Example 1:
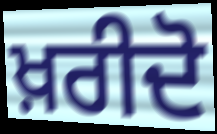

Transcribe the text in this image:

ਖ਼ਰੀਦੋ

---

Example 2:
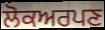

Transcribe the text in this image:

ਲੋਕਅਰਪਣ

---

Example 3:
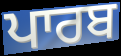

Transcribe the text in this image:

ਪਾਰਬ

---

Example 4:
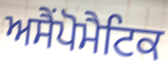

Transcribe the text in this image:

ਅਸੈਂਪੋਮੈਟਿਕ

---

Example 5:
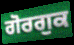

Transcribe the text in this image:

ਗੋਰਗੁਕ